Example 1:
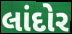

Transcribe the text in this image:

લાંદોર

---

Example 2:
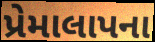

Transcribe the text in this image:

પ્રેમાલાપના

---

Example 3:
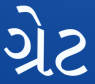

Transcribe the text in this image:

ગ્રેટ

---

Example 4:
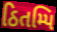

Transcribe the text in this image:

ઠિતમ્પિ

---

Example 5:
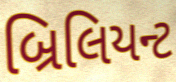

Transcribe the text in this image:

બ્રિલિયન્ટ